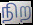
நிற